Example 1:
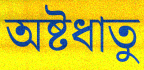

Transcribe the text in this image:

অষ্টধাতু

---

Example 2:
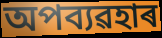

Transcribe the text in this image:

অপব্যৱহাৰ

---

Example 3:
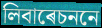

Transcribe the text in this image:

লিবাৰেচননে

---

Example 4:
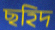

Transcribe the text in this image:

ছহিদ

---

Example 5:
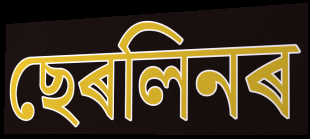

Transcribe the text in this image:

ছেৰলিনৰ